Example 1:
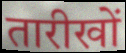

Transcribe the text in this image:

तारीखों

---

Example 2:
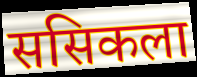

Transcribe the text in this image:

ससिकला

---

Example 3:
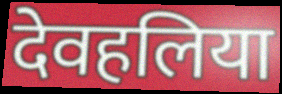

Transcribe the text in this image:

देवहलिया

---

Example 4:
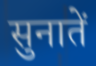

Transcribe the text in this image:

सुनातें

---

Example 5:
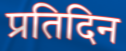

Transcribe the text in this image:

प्रतिदिन